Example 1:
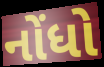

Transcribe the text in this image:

નોંધો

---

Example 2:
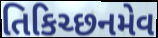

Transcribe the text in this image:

તિકિચ્છનમેવ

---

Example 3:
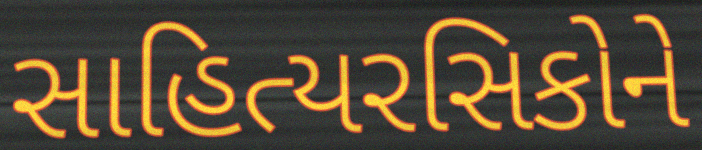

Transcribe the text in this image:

સાહિત્યરસિકોને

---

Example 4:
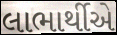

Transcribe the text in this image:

લાભાર્થીએ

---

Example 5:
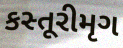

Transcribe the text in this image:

કસ્તૂરીમૃગ